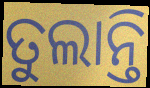
ତୁଲାନ୍ତି